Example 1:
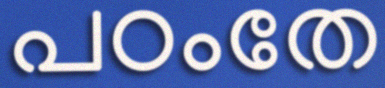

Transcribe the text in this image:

പഠംതേ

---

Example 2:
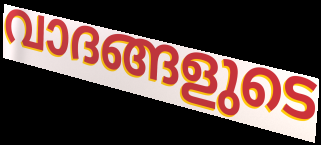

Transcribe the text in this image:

വാദങ്ങളുടെ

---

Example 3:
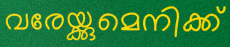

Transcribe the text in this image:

വരേയ്ക്കുമെനിക്ക്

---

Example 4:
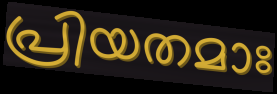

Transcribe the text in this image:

പ്രിയതമാഃ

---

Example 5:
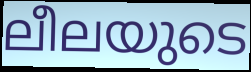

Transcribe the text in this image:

ലീലയുടെ